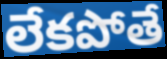
లేకపోతే